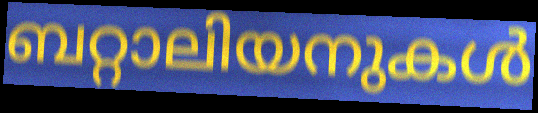
ബറ്റാലിയനുകൾ